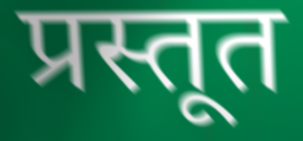
प्रस्तूत